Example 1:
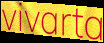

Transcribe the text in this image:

vivarta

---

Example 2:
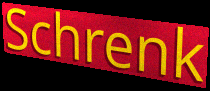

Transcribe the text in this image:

Schrenk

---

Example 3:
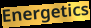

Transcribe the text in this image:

Energetics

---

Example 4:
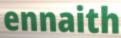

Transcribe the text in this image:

ennaith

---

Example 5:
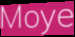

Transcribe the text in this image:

Moye